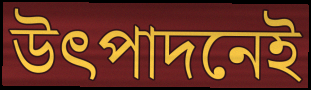
উৎপাদনেই